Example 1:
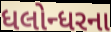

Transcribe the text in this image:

ધલોન્ધરના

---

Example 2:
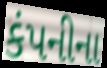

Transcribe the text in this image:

કંપનીના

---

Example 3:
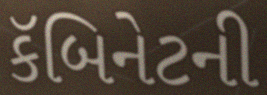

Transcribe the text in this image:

કૅબિનેટની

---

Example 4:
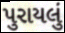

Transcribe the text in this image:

પુરાયલું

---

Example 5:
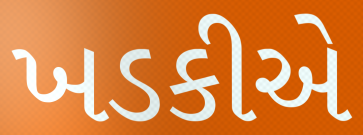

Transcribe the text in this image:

ખડકીએ